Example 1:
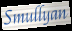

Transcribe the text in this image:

Smullyan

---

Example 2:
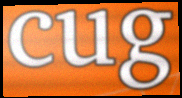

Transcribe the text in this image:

cug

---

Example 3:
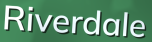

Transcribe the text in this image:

Riverdale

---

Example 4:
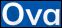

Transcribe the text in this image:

Ova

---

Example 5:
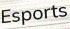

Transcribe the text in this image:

Esports